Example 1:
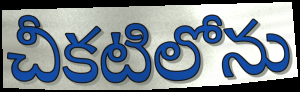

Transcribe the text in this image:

చీకటిలోను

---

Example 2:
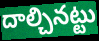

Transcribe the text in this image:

దాల్చినట్టు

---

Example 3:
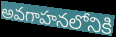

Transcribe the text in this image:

అవగాహనలోనికి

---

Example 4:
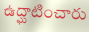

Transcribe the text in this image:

ఉద్ఘాటించారు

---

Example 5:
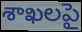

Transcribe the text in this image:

శాఖలపై